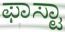
ಫಾಸ್ಟಾ